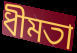
ধীমতা